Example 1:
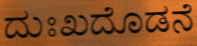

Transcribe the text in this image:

ದುಃಖದೊಡನೆ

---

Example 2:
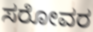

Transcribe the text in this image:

ಸರೋವರ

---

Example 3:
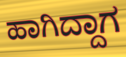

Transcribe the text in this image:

ಹಾಗಿದ್ದಾಗ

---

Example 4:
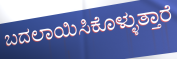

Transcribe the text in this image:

ಬದಲಾಯಿಸಿಕೊಳ್ಳುತ್ತಾರೆ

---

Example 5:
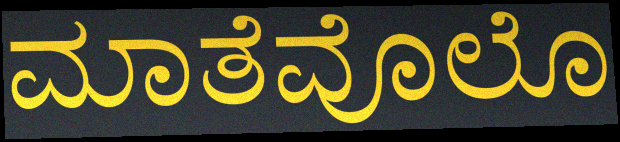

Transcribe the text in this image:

ಮಾತೆವೊಲೊ